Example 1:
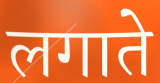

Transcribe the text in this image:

लगाते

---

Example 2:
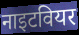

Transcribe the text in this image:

नाइटवियर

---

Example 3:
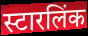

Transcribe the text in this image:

स्‍टारलिंक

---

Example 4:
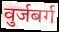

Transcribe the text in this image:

वुर्जबर्ग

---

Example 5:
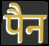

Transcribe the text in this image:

पैन